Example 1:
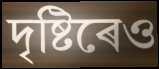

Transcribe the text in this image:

দৃষ্টিৰেও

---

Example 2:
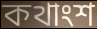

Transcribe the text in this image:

কথাংশ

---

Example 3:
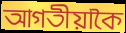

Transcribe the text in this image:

আগতীয়াকৈ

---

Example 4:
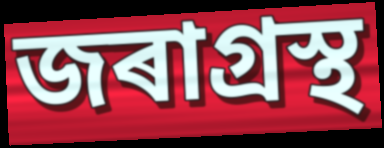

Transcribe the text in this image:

জৰাগ্ৰস্থ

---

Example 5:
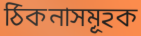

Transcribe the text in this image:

ঠিকনাসমূহক